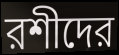
রশীদের